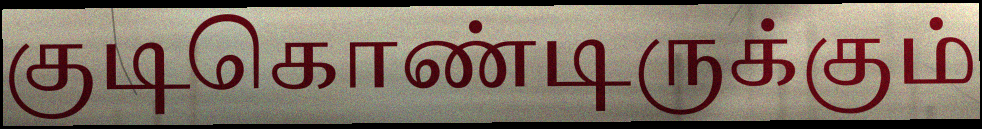
குடிகொண்டிருக்கும்